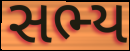
સભ્ય